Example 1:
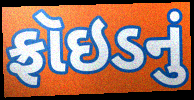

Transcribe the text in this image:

ફ્રૉઇડનું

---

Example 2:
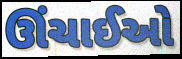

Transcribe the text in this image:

ઊંચાઈઓ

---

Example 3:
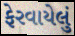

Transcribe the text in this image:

ફેરવાયેલું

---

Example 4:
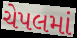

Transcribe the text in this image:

ચેપલમાં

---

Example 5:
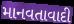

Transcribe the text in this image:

માનવતાવાદી